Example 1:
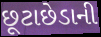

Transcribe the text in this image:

છૂટાછેડાની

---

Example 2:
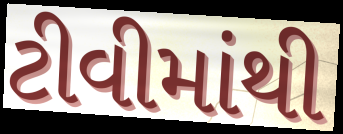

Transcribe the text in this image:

ટીવીમાંથી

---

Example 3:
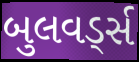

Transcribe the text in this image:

બુલવર્ડ્સ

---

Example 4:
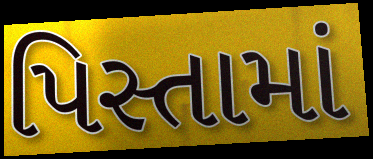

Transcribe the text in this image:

પિસ્તામાં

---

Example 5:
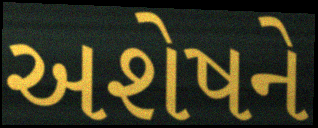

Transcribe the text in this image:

અશેષને